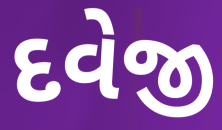
દવેજી